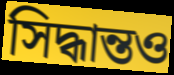
সিদ্ধান্তও